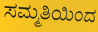
ಸಮ್ಮತಿಯಿಂದ